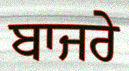
ਬਾਜਰੇ